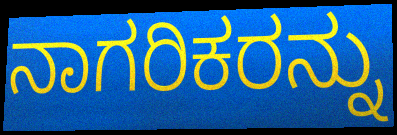
ನಾಗರಿಕರನ್ನು